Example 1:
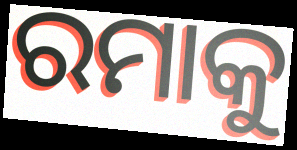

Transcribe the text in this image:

ରମାକୁ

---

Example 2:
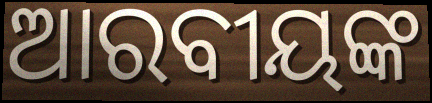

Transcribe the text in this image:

ଆରବୀୟଙ୍କ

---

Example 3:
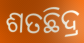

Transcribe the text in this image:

ଶତଛିଦ୍ର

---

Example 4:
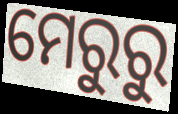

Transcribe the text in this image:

ମେରୁରୁ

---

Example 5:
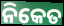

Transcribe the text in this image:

ନିକେତ